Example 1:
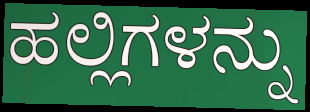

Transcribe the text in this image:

ಹಲ್ಲಿಗಳನ್ನು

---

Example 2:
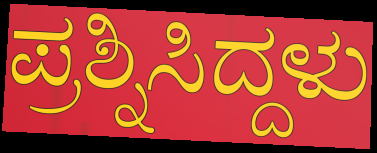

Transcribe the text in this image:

ಪ್ರಶ್ನಿಸಿದ್ದಳು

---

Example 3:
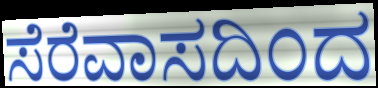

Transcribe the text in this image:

ಸೆರೆವಾಸದಿಂದ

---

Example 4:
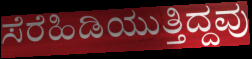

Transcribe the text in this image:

ಸೆರೆಹಿಡಿಯುತ್ತಿದ್ದವು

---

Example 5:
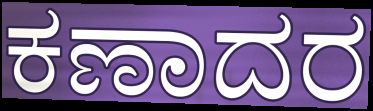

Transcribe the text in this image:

ಕಣಾದರ